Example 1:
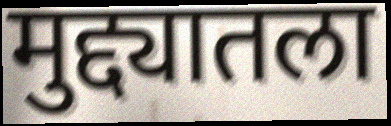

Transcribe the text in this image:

मुद्द्यातला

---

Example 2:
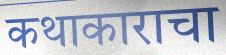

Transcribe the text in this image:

कथाकाराचा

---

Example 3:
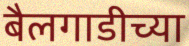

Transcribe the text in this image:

बैलगाडीच्या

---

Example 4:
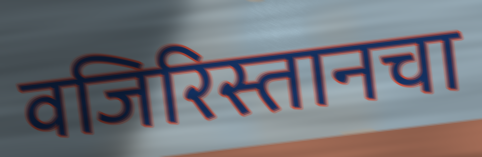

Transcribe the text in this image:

वजिरिस्तानचा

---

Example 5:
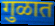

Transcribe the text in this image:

गुळात